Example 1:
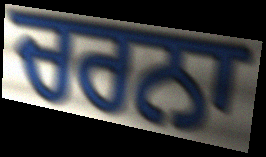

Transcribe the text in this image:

ਚਰਨਾ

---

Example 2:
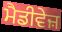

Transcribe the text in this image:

ਮੈਡੀਵੇਜ਼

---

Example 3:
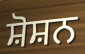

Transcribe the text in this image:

ਸ਼ੋਸ਼ਨ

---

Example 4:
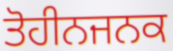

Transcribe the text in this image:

ਤੋਹੀਨਜਨਕ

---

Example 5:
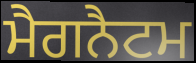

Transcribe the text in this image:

ਮੈਗਨੈਟਮ